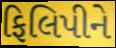
ફિલિપીને